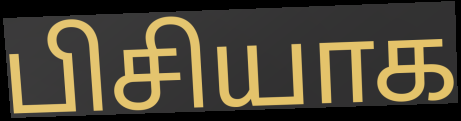
பிசியாக